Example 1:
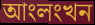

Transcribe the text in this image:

আংলংখন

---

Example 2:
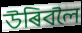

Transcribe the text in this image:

উৰিবলৈ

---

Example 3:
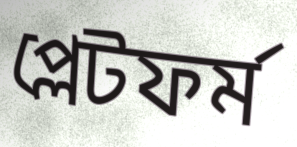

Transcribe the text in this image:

প্লেটফৰ্ম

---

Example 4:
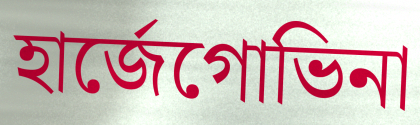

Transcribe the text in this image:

হাৰ্জেগোভিনা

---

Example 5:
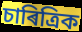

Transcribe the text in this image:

চাৰিত্ৰিক